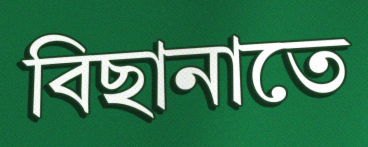
বিছানাতে